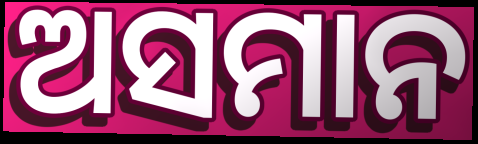
ଅସମାନ